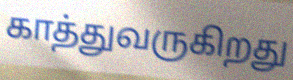
காத்துவருகிறது